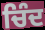
ਚਿੰਦ